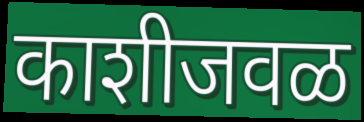
काशीजवळ